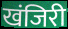
खंजिरी